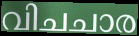
വിചചാര